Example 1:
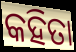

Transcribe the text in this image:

କହିତା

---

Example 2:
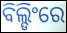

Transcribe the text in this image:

ବିଲ୍ଡିଂରେ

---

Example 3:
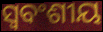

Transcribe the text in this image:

ସ୍ଵବଂଶୀୟ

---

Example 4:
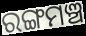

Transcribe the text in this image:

ରଙ୍ଗମଞ୍ଚ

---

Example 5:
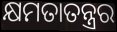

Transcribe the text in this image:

କ୍ଷମତାତନ୍ତ୍ରର